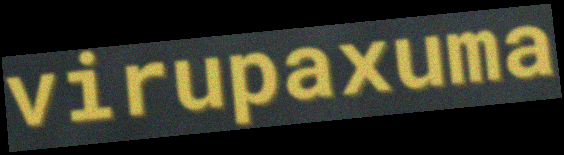
virupaxuma